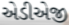
એડીએજી